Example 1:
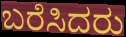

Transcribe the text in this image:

ಬರೆಸಿದರು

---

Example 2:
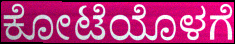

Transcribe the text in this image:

ಕೋಟೆಯೊಳಗೆ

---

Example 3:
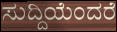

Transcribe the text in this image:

ಸುದ್ದಿಯೆಂದರೆ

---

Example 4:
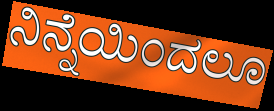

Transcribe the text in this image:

ನಿನ್ನೆಯಿಂದಲೂ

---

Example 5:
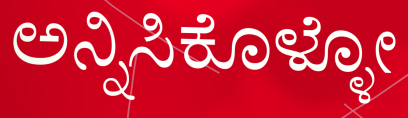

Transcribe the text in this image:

ಅನ್ನಿಸಿಕೊಳ್ಳೋ